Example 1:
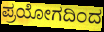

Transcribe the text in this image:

ಪ್ರಯೋಗದಿಂದ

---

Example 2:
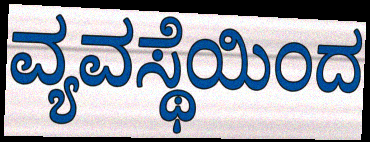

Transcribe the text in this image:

ವ್ಯವಸ್ಥೆಯಿಂದ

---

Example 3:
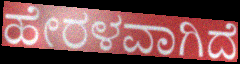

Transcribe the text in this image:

ಹೇರಳವಾಗಿದೆ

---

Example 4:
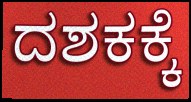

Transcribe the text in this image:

ದಶಕಕ್ಕೆ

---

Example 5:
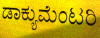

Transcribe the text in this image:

ಡಾಕ್ಯುಮೆಂಟರಿ